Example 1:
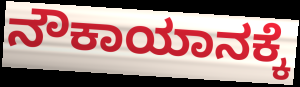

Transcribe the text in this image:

ನೌಕಾಯಾನಕ್ಕೆ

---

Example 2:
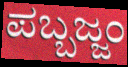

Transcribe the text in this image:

ಪಬ್ಬಜ್ಜಂ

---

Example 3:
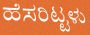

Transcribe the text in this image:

ಹೆಸರಿಟ್ಟಳು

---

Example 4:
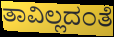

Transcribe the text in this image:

ತಾವಿಲ್ಲದಂತೆ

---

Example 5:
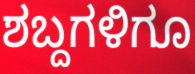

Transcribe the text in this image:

ಶಬ್ದಗಳಿಗೂ